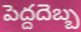
పెద్దదెబ్బ